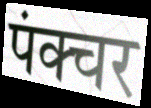
पंक्‍चर